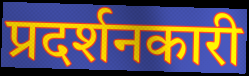
प्रदर्शनकारी